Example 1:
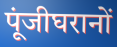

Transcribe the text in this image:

पूंजीघरानों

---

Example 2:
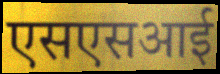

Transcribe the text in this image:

एसएसआई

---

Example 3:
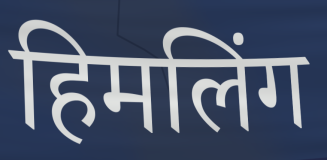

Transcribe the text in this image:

हिमलिंग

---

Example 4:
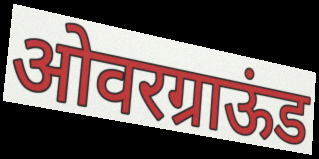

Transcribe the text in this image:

ओवरग्राऊंड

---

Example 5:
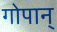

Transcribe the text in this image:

गोपान्